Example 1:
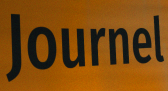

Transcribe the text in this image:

Journel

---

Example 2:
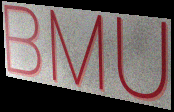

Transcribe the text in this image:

BMU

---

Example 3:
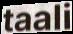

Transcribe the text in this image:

taali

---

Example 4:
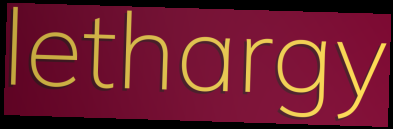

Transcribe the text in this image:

lethargy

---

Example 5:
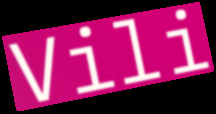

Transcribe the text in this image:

Vili